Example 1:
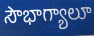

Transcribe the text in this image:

సౌభాగ్యాలూ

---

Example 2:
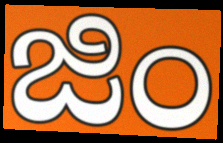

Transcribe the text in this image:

జిం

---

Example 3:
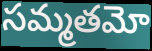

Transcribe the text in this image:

సమ్మతమో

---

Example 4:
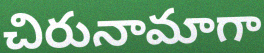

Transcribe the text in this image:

చిరునామాగా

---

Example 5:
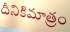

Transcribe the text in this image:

దీనికిమాత్రం